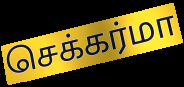
செக்கர்மா